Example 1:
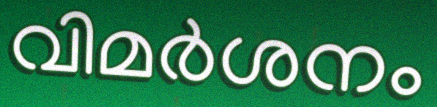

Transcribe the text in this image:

വിമർശനം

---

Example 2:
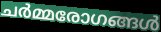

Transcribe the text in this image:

ചർമ്മരോഗങ്ങൾ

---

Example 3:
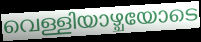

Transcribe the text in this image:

വെള്ളിയാഴ്ചയോടെ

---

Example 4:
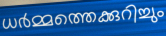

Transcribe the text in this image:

ധർമ്മത്തെക്കുറിച്ചും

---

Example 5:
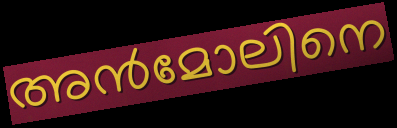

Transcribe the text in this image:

അൻമോലിനെ